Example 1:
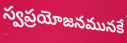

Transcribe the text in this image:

స్వప్రయోజనమునకే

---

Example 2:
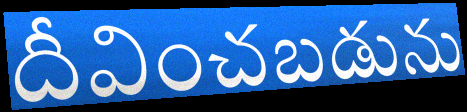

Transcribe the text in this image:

దీవించబడును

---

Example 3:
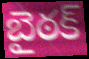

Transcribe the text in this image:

బైఠక్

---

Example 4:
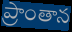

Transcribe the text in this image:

ప్రాంతాన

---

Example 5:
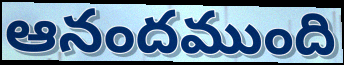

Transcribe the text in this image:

ఆనందముంది